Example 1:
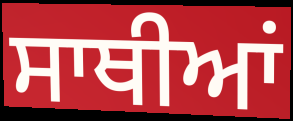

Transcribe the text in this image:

ਸਾਥੀਆਂ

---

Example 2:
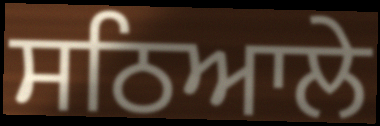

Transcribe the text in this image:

ਸਠਿਆਲੇ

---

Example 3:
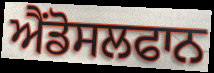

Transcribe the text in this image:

ਐਂਡੋਸਲਫਾਨ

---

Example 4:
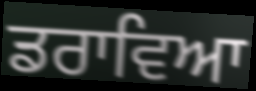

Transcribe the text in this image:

ਡਰਾਵਿਆ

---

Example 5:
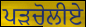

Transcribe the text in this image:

ਪੜਚੋਲੀਏ